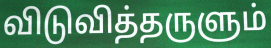
விடுவித்தருளும்